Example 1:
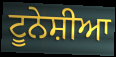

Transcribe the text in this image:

ਟੂਨੇਸ਼ੀਆ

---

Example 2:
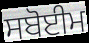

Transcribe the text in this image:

ਸਬੋਈਮ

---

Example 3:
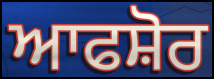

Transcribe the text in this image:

ਆਫਸ਼ੋਰ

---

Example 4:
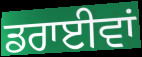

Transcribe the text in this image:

ਡਰਾਈਵਾਂ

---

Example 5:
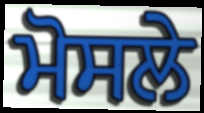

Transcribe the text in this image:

ਮੋਸਲੇ